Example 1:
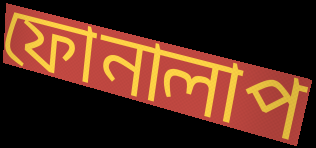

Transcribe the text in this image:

ফোনালাপ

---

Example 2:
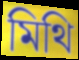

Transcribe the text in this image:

মিথি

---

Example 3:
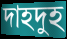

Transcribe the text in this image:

দাহদুহ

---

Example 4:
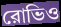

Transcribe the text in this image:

রোভিও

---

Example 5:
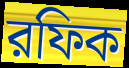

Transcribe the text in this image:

রফিক